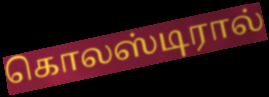
கொலஸ்டிரால்